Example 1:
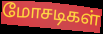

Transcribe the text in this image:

மோசடிகள்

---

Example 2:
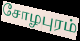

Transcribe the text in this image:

சோழபுரம்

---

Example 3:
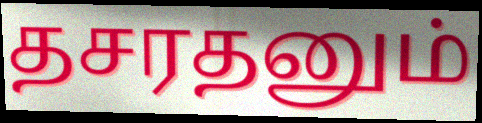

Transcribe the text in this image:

தசரதனும்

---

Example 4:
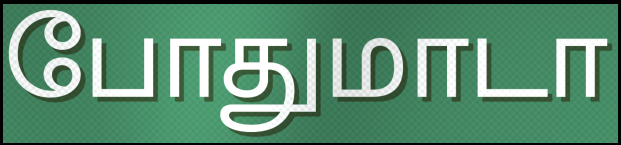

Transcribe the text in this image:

போதுமாடா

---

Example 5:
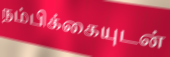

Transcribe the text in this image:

நம்பிக்கையுடன்